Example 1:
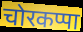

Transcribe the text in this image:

चोरकप्पा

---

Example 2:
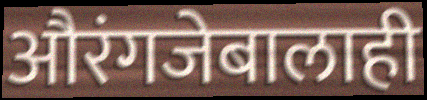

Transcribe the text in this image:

औरंगजेबालाही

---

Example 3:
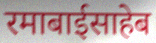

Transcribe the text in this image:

रमाबाईसाहेब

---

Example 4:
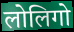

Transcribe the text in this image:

लोलिगो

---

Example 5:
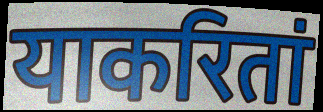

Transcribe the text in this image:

याकरितां